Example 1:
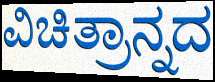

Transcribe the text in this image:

ವಿಚಿತ್ರಾನ್ನದ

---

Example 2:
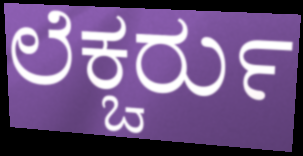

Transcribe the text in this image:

ಲೆಕ್ಚರ್ರು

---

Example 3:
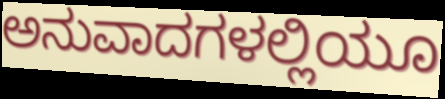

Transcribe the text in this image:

ಅನುವಾದಗಳಲ್ಲಿಯೂ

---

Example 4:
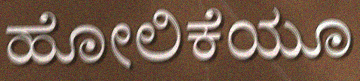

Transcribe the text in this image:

ಹೋಲಿಕೆಯೂ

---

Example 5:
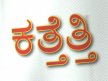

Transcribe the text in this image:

ಕತ್ತೆತ್ತಿ